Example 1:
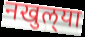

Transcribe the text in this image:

नखुल्या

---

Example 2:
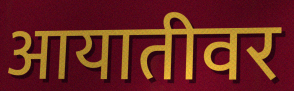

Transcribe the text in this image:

आयातीवर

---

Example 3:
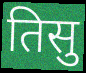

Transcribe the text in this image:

तिसु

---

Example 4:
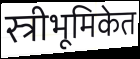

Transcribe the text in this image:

स्त्रीभूमिकेत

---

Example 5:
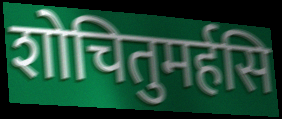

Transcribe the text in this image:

शोचितुमर्हसि